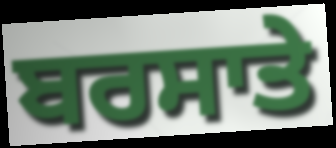
ਬਰਸਾਤੇ